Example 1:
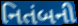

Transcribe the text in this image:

નિતંબની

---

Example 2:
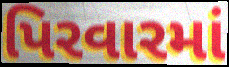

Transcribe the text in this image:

પિરવારમાં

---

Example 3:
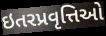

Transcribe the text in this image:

ઇતરપ્રવૃત્તિઓ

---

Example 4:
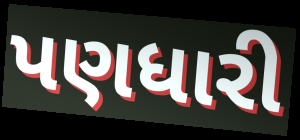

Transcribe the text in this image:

પણધારી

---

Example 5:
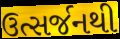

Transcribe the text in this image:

ઉત્સર્જનથી